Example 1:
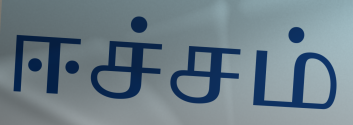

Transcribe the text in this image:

ஈச்சம்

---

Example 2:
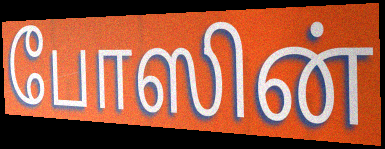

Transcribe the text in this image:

போஸின்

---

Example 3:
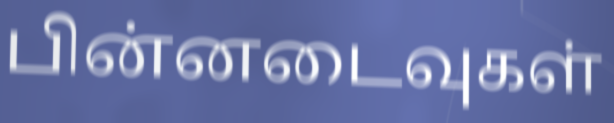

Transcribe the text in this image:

பின்னடைவுகள்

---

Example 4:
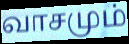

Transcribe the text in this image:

வாசமும்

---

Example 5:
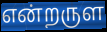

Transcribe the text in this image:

என்றருள